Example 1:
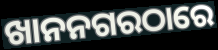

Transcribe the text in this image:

ଖାନନଗରଠାରେ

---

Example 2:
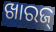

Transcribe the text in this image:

ଖାରଜ୍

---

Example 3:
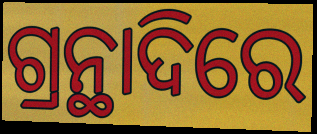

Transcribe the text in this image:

ଗ୍ରନ୍ଥାଦିରେ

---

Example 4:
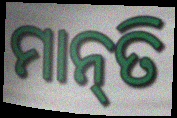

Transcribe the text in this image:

ମାନ୍‌ତି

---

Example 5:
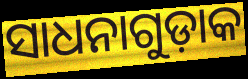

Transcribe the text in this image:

ସାଧନାଗୁଡ଼ାକ